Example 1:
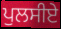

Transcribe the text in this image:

ਪੁਲਸੀਏ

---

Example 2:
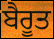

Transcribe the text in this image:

ਬੈਰੂਤ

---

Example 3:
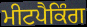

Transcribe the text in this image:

ਮੀਟਪੈਕਿੰਗ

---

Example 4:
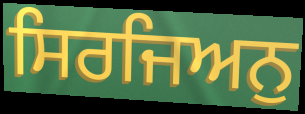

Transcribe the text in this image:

ਸਿਰਜਿਅਨੁ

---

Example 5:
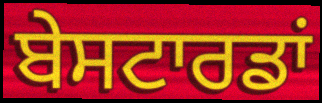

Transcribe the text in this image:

ਬੇਸਟਾਰਡਾਂ